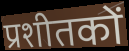
प्रशीतकों